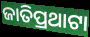
ଜାତିପ୍ରଥାଟା